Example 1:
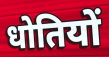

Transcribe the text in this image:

धोतियों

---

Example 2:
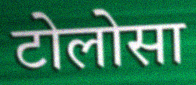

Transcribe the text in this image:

टोलोसा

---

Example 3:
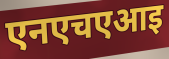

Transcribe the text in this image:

एनएचएआइ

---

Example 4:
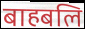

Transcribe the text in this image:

बाहबलि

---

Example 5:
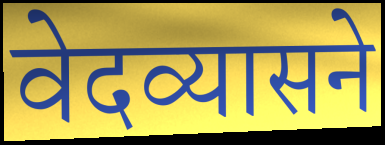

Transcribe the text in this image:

वेदव्यासने